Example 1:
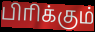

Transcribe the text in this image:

பிரிக்கும்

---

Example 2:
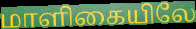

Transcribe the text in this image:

மாளிகையிலே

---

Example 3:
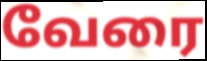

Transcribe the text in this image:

வேரை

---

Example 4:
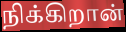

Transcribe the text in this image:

நிக்கிறான்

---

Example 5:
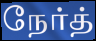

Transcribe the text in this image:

நேர்த்